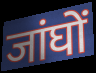
जांघों